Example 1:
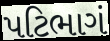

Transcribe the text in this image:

પટિભાગં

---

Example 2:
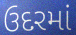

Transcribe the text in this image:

ઉદરમાં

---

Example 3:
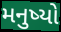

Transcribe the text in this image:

મનુષ્યો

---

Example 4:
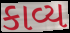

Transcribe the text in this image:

કાવ્ય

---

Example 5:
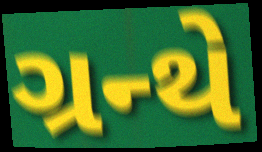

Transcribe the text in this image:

ગ્રન્થે